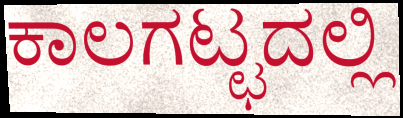
ಕಾಲಗಟ್ಟದಲ್ಲಿ